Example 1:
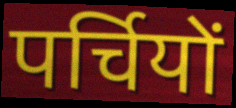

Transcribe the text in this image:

पर्चियों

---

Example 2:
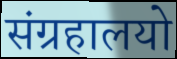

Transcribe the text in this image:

संग्रहालयो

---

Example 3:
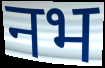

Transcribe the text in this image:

नभ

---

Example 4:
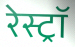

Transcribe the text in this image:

रेस्ट्रॉ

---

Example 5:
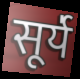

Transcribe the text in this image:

सूर्य॑